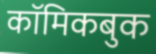
कॉमिकबुक